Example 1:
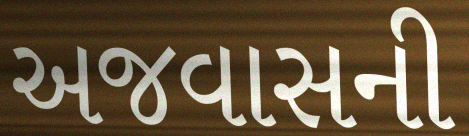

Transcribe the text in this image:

અજવાસની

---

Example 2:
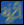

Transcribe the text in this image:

ચૂંટી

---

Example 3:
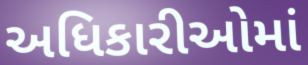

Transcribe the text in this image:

અધિકારીઓમાં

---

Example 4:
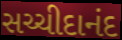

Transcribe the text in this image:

સચ્ચીદાનંદ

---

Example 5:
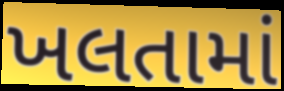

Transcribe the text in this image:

ખલતામાં